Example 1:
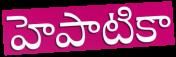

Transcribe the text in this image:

హెపాటికా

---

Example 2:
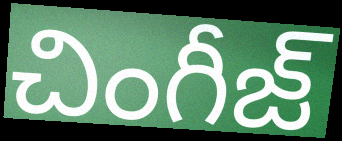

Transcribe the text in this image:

చింగీజ్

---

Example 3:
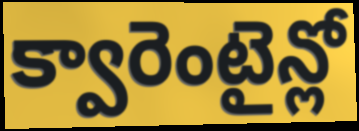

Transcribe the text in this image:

క్వారెంటైన్లో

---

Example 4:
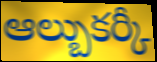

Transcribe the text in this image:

ఆల్బుకర్కీ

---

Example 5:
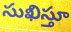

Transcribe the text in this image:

సుఖిస్తూ